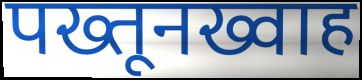
पख्तूनख्वाह